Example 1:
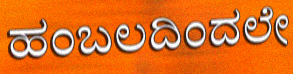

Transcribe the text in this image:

ಹಂಬಲದಿಂದಲೇ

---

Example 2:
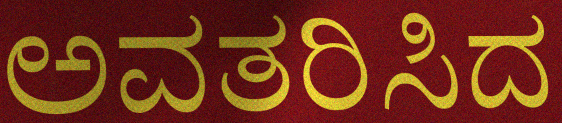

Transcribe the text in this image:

ಅವತರಿಸಿದ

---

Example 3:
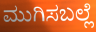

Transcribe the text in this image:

ಮುಗಿಸಬಲ್ಲೆ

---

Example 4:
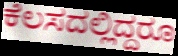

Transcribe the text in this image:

ಕೆಲಸದಲ್ಲಿದ್ದರೂ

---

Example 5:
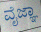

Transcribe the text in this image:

ವೈಜ್ಞಾ